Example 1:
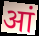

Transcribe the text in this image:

आं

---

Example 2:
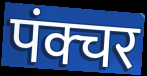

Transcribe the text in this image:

पंक्‍चर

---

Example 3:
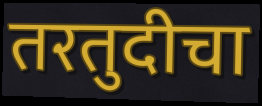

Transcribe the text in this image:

तरतुदीचा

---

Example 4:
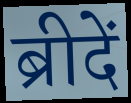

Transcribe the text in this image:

ब्रीदें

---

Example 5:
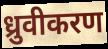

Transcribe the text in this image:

ध्रुवीकरण